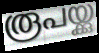
രൂപയ്ക്കു